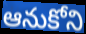
ఆనుకోని